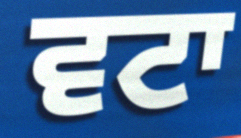
ਵਟਾ